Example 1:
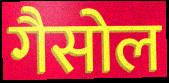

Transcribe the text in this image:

गैसोल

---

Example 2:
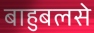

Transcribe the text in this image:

बाहुबलसे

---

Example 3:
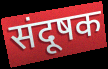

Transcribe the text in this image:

संदूषक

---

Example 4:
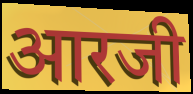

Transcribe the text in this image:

आरजी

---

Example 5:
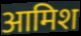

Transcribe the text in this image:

आमिश